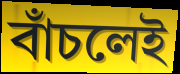
বাঁচলেই